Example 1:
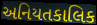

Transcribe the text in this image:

અનિયતકાલિક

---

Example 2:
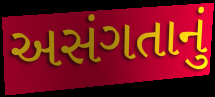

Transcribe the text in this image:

અસંગતાનું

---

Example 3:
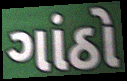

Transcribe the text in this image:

ગાંઠો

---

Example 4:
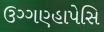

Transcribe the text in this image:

ઉગ્ગણ્હાપેસિ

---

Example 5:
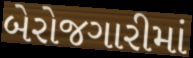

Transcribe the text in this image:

બેરોજગારીમાં